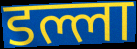
डल्ला